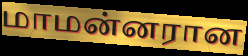
மாமன்னரான